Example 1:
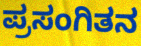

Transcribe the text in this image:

ಪ್ರಸಂಗಿತನ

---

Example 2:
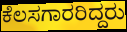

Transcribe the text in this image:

ಕೆಲಸಗಾರರಿದ್ದರು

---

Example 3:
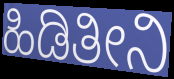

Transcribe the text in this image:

ಹಿಡಿತೀನಿ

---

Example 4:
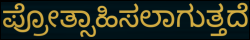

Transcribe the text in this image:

ಪ್ರೋತ್ಸಾಹಿಸಲಾಗುತ್ತದೆ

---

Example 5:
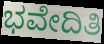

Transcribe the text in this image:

ಭವೇದಿತಿ